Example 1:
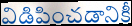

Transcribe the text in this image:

విడిపించడానికీ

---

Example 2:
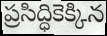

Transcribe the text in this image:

ప్రసిద్ధికెక్కిన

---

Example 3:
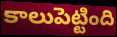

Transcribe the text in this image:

కాలుపెట్టింది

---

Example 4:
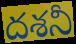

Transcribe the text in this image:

దశనీ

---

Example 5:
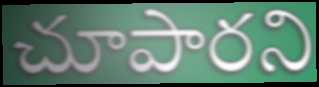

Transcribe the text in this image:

చూపారని